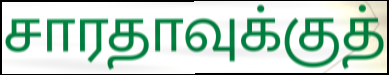
சாரதாவுக்குத்